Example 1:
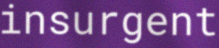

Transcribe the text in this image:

insurgent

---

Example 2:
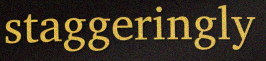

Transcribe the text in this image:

staggeringly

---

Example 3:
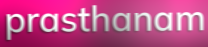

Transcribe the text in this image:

prasthanam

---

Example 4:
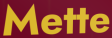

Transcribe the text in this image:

Mette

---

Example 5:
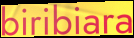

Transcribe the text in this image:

biribiara